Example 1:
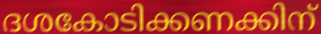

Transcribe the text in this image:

ദശകോടിക്കണക്കിന്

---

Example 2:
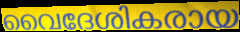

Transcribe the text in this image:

വൈദേശികരായ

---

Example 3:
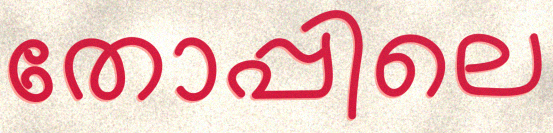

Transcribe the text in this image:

തോപ്പിലെ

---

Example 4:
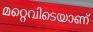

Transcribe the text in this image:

മറ്റെവിടെയാണ്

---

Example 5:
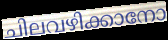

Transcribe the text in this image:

ചിലവഴിക്കാനോ